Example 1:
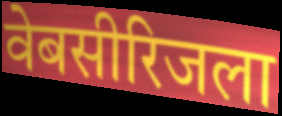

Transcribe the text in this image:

वेबसीरिजला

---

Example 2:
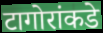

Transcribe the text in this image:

टागोरांकडे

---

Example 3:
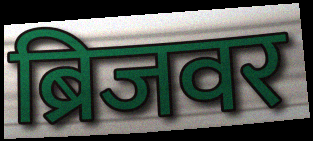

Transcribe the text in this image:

ब्रिजवर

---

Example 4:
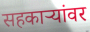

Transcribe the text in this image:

सहकार्‍यांवर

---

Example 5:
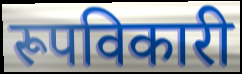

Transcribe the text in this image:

रूपविकारी